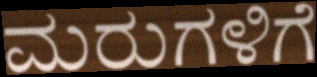
ಮರುಗಳಿಗೆ